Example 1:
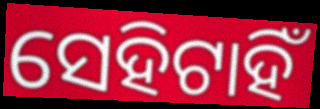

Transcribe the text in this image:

ସେହିଟାହିଁ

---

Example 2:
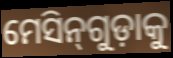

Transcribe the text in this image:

ମେସିନ୍‌ଗୁଡ଼ାକୁ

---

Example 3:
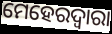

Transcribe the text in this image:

ମେହେରଦ୍ୱାରା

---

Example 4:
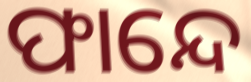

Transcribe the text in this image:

ଫାନ୍ଦେ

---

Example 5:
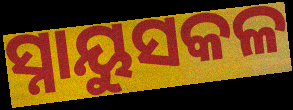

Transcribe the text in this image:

ସ୍ନାୟୁସକଳ